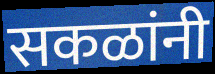
सकळांनी